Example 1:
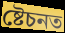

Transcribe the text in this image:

ষ্টেচনত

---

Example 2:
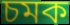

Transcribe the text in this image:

চমক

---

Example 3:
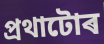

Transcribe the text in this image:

প্ৰথাটোৰ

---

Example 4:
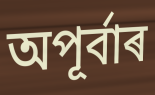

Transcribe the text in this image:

অপূৰ্বাৰ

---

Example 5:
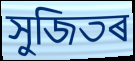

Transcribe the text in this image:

সুজিতৰ